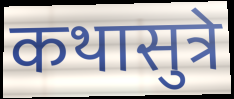
कथासुत्रे